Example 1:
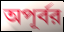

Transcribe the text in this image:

অপূর্বর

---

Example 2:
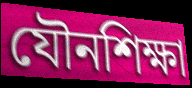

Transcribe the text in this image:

যৌনশিক্ষা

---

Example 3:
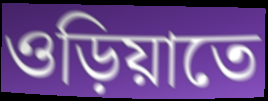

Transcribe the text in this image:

ওড়িয়াতে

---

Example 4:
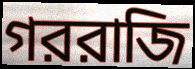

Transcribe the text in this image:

গররাজি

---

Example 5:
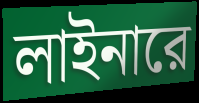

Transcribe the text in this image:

লাইনারে